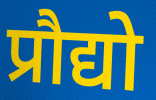
प्रौद्यो